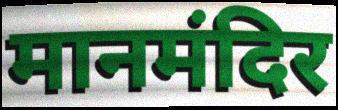
मानमंदिर